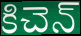
కిచెన్